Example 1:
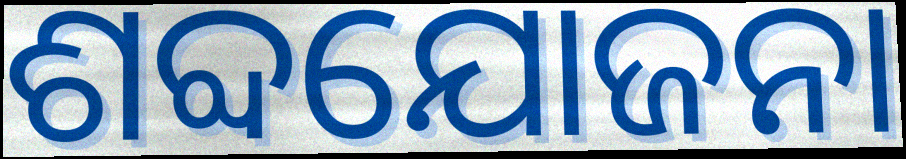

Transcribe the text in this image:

ଶବ୍ଦଯୋଜନା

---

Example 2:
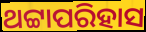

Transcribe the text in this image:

ଥଟ୍ଟାପରିହାସ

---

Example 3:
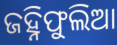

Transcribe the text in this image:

ଜହ୍ନିଫୁଲିଆ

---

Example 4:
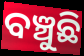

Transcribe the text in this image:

ବଞ୍ଚୁଛି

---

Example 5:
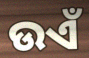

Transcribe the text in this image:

ଉଏଁ